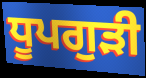
ਧੂਪਗੁੜੀ